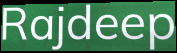
Rajdeep